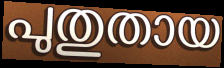
പുതുതായ